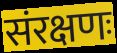
संरक्षणः